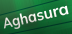
Aghasura